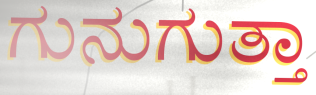
ಗುನುಗುತ್ತಾ